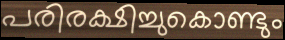
പരിരക്ഷിച്ചുകൊണ്ടും